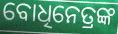
ବୋଧିନେତ୍ରଙ୍କ